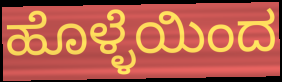
ಹೊಳ್ಳೆಯಿಂದ